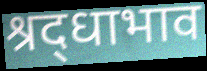
श्रद्धाभाव